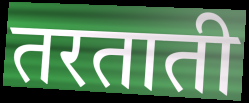
तरताती